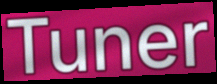
Tuner